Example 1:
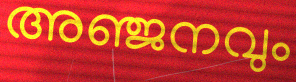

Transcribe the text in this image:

അഞ്ജനവും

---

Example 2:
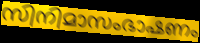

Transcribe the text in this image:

സിനിമാസംഭാഷണം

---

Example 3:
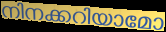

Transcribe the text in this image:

നിനക്കറിയാമോ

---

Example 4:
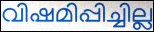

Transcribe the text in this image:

വിഷമിപ്പിച്ചില്ല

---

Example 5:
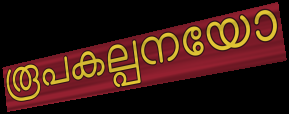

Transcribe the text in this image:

രൂപകല്പനയോ